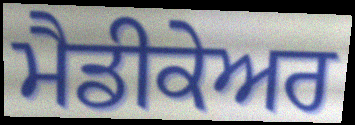
ਮੈਡੀਕੇਅਰ